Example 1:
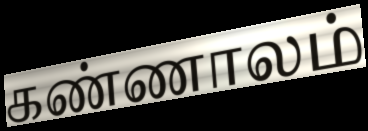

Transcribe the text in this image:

கண்ணாலம்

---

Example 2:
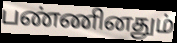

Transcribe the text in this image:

பண்ணினதும்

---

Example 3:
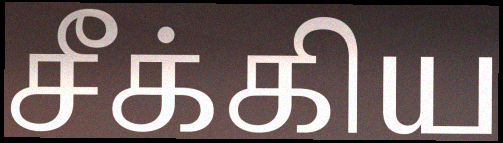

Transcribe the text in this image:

சீக்கிய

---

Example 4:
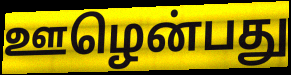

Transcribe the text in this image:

ஊழென்பது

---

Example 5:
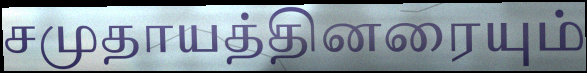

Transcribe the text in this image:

சமுதாயத்தினரையும்